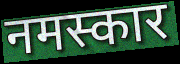
नमस्कार